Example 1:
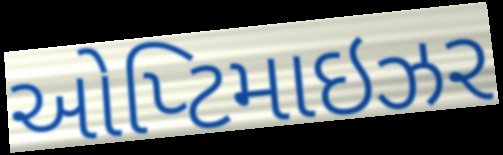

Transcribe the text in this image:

ઓપ્ટિમાઇઝર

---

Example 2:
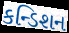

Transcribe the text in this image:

કન્ડિશન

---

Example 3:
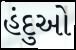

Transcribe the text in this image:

હંદુઓ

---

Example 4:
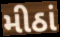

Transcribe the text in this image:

મીઠાં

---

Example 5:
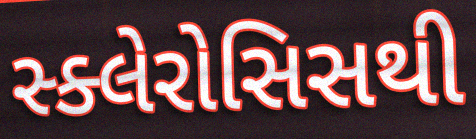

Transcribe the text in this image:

સ્ક્લેરોસિસથી